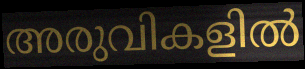
അരുവികളിൽ